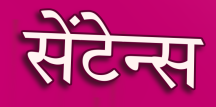
सेंटेन्स